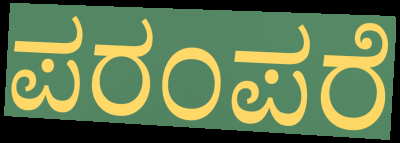
ಪರಂಪರೆ